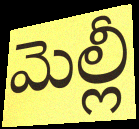
మెల్లీ